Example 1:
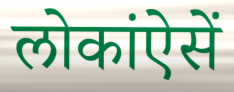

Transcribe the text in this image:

लोकांऐसें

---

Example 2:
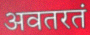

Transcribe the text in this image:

अवतरतं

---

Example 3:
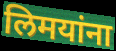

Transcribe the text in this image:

लिमयांना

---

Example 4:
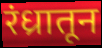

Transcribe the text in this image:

रंध्रातून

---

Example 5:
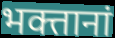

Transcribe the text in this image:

भक्तानां